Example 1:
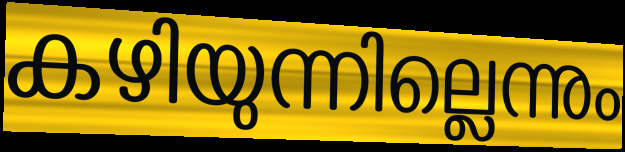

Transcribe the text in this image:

കഴിയുന്നില്ലെന്നും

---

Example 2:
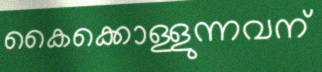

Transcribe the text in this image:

കൈക്കൊള്ളുന്നവന്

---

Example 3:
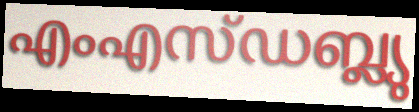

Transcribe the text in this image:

എംഎസ്ഡബ്ല്യു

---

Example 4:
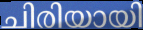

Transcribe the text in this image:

ചിരിയായി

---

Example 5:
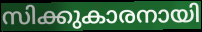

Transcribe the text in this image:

സിക്കുകാരനായി